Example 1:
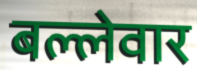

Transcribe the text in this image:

बल्लेवार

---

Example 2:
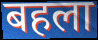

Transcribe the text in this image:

बहला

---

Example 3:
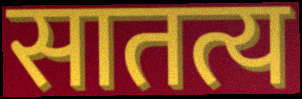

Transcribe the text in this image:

सातत्य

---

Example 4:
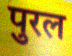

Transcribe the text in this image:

पुरल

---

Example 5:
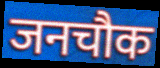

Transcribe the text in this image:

जनचौक